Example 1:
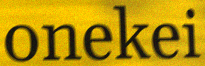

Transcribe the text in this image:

onekei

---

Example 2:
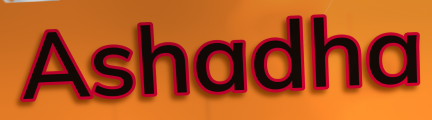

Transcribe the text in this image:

Ashadha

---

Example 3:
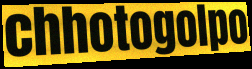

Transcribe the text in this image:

chhotogolpo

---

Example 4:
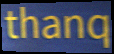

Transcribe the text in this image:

thanq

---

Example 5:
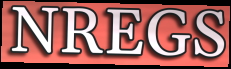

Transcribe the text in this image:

NREGS